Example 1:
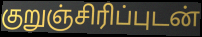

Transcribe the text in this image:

குறுஞ்சிரிப்புடன்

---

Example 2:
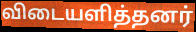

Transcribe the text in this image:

விடையளித்தனர்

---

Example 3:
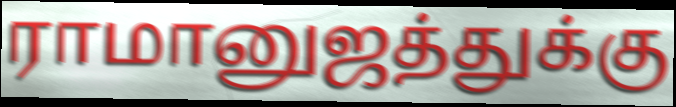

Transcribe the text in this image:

ராமானுஜத்துக்கு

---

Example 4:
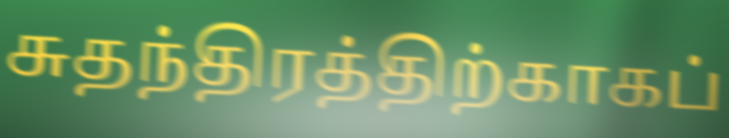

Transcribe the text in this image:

சுதந்திரத்திற்காகப்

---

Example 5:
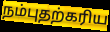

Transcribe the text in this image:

நம்புதற்கரிய